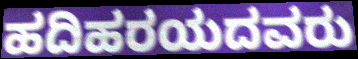
ಹದಿಹರಯದವರು